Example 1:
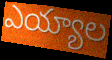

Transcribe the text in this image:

ఎయ్యాల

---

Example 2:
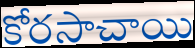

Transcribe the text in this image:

కోరసాచాయి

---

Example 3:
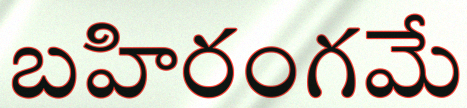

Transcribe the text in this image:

బహిరంగమే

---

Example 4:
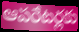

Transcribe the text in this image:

ఆపరేటర్లకు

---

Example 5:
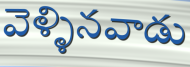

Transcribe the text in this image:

వెళ్ళినవాడు